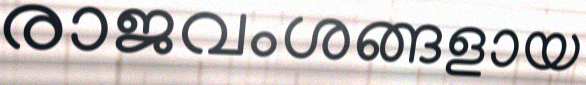
രാജവംശങ്ങളായ